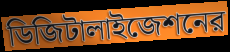
ডিজিটালাইজেশনের